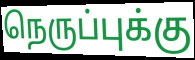
நெருப்புக்கு